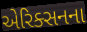
એરિક્સનના